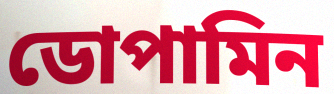
ডোপামিন